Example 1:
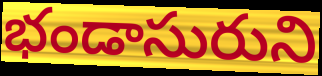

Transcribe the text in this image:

భండాసురుని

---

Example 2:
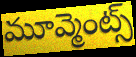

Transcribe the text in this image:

మూవ్మెంట్స్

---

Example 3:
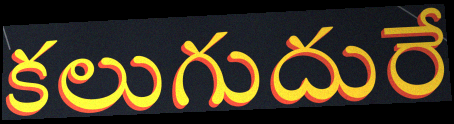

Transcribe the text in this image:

కలుగుదురే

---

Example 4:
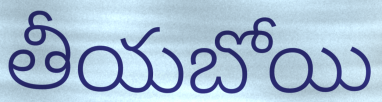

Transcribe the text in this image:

తీయబోయి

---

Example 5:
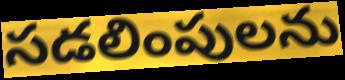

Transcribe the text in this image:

సడలింపులను